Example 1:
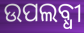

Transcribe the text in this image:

ଉପଲବ୍ଧୀ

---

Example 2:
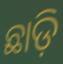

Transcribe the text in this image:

ଛାଡ଼ି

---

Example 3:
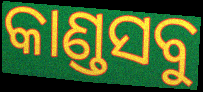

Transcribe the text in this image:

କାଣ୍ଡସବୁ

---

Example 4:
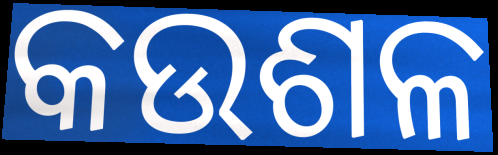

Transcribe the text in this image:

କଉଶଳ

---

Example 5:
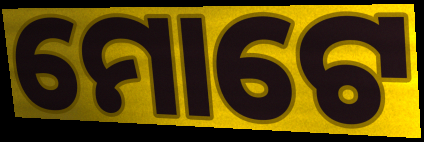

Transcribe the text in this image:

ମୋଟେ